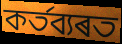
কৰ্তব্যৰত